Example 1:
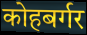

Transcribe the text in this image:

कोहबर्गर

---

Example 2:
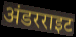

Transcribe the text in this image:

अंडरराइट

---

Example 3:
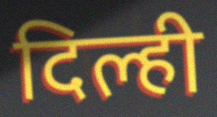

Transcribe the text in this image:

दिल्ही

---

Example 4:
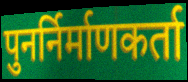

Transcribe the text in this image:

पुनर्निर्माणकर्ता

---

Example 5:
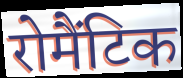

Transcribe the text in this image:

रोमैंटिक